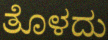
ತೊಳದು